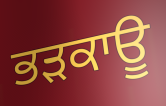
ਭੜਕਾਊ